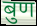
बुण